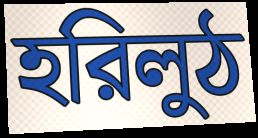
হরিলুঠ